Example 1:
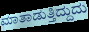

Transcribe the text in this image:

ಮಾತಾಡುತ್ತಿದ್ದುದು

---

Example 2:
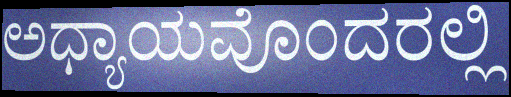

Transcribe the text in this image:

ಅಧ್ಯಾಯವೊಂದರಲ್ಲಿ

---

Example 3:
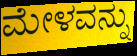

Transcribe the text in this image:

ಮೇಳವನ್ನು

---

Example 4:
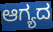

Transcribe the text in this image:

ಆಗ್ಯದ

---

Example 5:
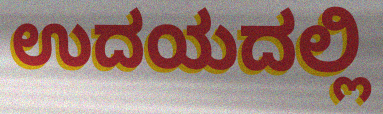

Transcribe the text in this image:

ಉದಯದಲ್ಲಿ